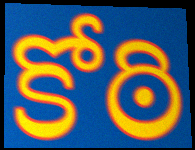
కోఠి